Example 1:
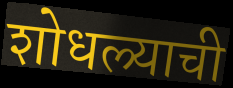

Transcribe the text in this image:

शोधल्याची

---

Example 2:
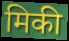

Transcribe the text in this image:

मिकी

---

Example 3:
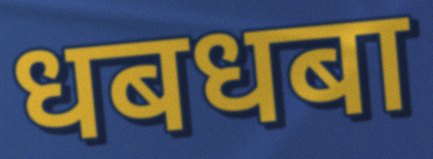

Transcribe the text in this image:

धबधबा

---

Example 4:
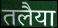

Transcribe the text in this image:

तलैया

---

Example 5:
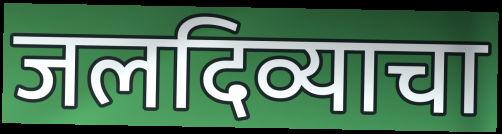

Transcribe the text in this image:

जलदिव्याचा